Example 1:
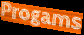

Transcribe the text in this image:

Progams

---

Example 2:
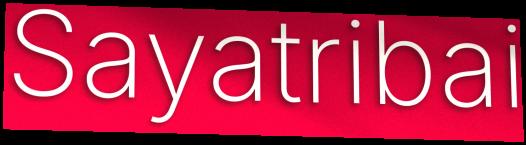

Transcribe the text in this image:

Sayatribai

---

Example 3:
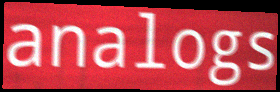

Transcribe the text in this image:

analogs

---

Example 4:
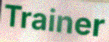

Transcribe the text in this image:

Trainer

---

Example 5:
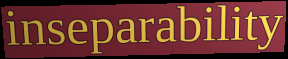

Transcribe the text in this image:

inseparability